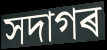
সদাগৰ